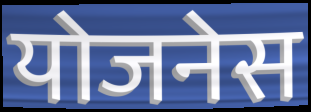
योजनेस